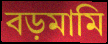
বড়মামি